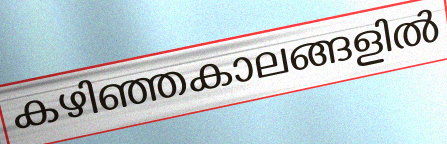
കഴിഞ്ഞകാലങ്ങളിൽ